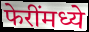
फेरींमध्ये